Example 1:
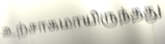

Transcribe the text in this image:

உற்சாகமாயிருந்தது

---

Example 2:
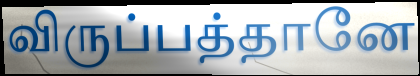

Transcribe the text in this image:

விருப்பத்தானே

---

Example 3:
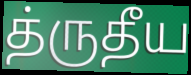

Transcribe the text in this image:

த்ருதீய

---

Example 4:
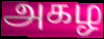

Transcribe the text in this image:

அகழ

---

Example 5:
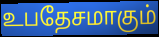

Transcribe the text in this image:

உபதேசமாகும்